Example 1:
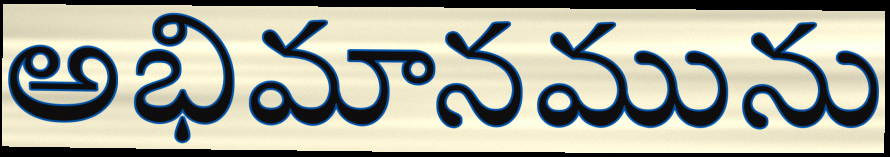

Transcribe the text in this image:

అభిమానమును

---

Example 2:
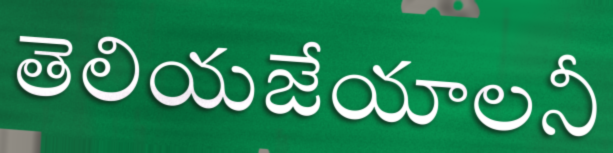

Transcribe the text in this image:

తెలియజేయాలనీ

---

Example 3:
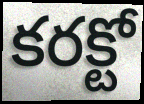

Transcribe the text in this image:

కరక్టో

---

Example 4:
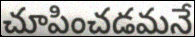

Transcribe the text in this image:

చూపించడమనే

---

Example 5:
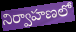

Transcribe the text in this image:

నిర్వాహణలో